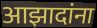
आझादांना